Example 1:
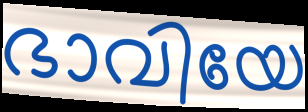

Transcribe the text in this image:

ഭാവിയേ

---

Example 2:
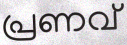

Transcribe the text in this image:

പ്രണവ്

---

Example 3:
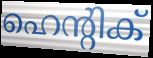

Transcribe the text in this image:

ഹെന്റിക്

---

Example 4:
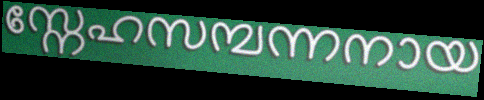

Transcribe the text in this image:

സ്നേഹസമ്പന്നനായ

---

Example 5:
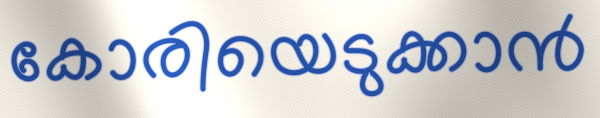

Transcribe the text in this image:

കോരിയെടുക്കാൻ